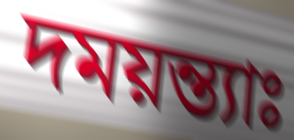
দময়ন্ত্যাঃ